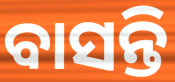
ବାସନ୍ତି